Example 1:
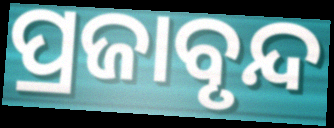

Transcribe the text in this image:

ପ୍ରଜାବୃନ୍ଦ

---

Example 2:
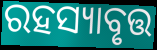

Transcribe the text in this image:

ରହସ୍ୟାବୃତ୍ତ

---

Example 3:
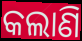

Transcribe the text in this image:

କଲାଣି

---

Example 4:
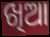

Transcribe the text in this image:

ଖିଆ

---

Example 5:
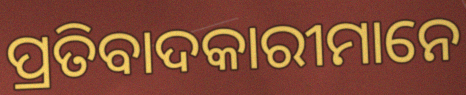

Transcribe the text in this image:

ପ୍ରତିବାଦକାରୀମାନେ